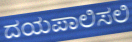
ದಯಪಾಲಿಸಲಿ